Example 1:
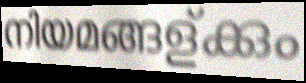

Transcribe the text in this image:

നിയമങ്ങള്ക്കും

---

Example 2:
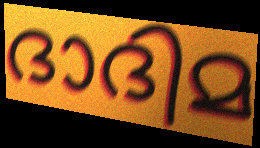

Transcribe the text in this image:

ദാദിമ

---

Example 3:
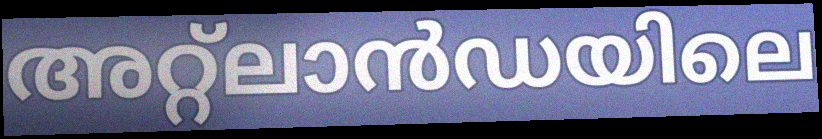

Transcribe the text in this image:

അറ്റ്ലാൻഡയിലെ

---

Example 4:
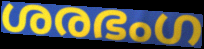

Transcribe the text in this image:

ശരഭംഗ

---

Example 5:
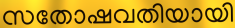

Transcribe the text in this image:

സതോഷവതിയായി